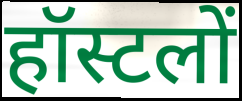
हॉस्टलों